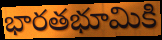
భారతభూమికి